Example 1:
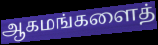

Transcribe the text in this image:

ஆகமங்களைத்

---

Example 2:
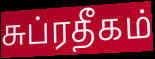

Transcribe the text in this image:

சுப்ரதீகம்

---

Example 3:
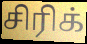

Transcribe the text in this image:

சிரிக்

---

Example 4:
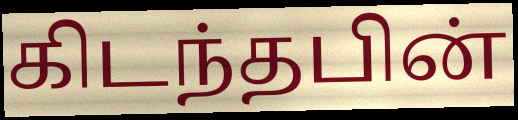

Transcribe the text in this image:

கிடந்தபின்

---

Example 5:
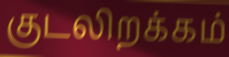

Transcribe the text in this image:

குடலிறக்கம்